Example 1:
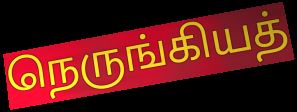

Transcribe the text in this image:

நெருங்கியத்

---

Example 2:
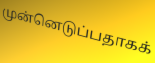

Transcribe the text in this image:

முன்னெடுப்பதாகக்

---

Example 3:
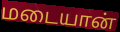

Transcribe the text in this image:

மடையான்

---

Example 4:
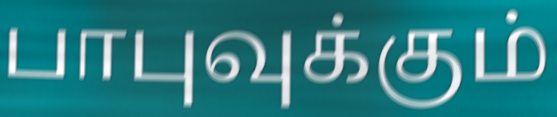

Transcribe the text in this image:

பாபுவுக்கும்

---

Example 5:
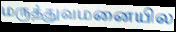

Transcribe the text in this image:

மருத்துவமனையில